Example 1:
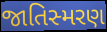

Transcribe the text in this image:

જાતિસ્મરણ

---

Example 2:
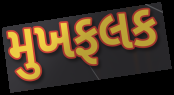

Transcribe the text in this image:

મુખફલક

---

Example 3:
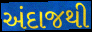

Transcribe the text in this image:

અંદાજથી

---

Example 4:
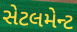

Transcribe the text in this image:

સેટલમેન્ટ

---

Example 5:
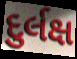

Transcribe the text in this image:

દુર્લક્ષ